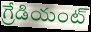
గ్రేడియంట్